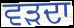
ਵੜਦਾ